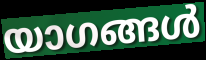
യാഗങ്ങൾ